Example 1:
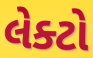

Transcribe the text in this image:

લેક્ટો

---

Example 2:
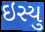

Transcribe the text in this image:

ઇસ્યુ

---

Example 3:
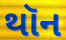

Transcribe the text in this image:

થૉન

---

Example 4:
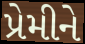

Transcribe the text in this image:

પ્રેમીને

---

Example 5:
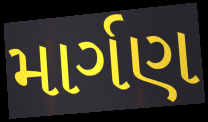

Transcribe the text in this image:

માર્ગણ